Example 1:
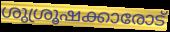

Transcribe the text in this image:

ശുശ്രൂഷക്കാരോട്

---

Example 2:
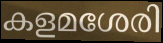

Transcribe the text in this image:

കളമശേരി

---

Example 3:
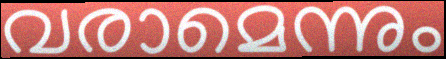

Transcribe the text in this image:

വരാമെന്നും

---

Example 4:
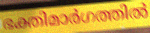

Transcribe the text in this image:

ഭക്തിമാർഗത്തിൽ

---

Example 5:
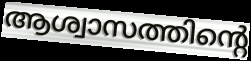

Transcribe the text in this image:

ആശ്വാസത്തിന്റെ